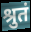
श्रुतं